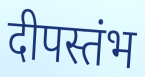
दीपस्तंभ